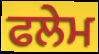
ਫਲੇਮ